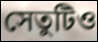
সেতুটিও